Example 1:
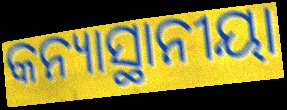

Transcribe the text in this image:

କନ୍ୟାସ୍ଥାନୀୟା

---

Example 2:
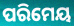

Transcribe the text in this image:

ପରିମେୟ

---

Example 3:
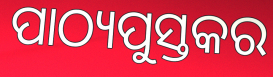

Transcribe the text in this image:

ପାଠ୍ୟପୁସ୍ତକର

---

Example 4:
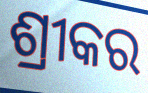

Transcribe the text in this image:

ଶ୍ରୀକର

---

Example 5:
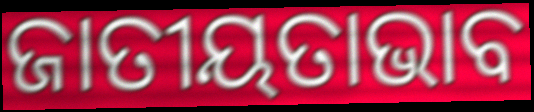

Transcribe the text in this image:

ଜାତୀୟତାଭାବ